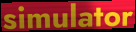
simulator